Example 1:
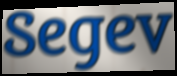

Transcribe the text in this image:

Segev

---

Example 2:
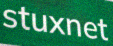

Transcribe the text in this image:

stuxnet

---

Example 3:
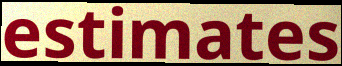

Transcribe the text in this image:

estimates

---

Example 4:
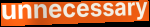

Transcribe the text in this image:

unnecessary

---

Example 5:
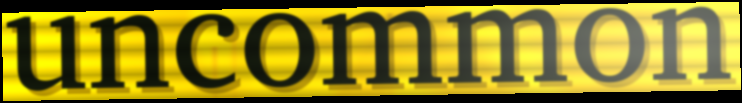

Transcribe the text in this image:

uncommon